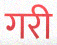
गरी